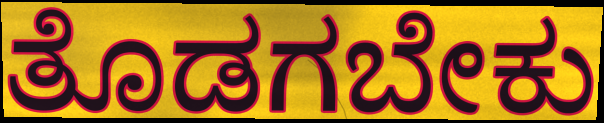
ತೊಡಗಬೇಕು